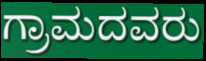
ಗ್ರಾಮದವರು